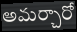
అమర్చారో